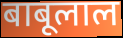
बाबूलाल